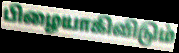
பிழையாகிவிடும்